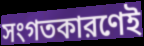
সংগতকারণেই